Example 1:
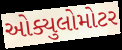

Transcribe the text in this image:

ઓક્યુલોમોટર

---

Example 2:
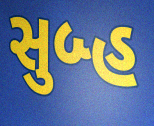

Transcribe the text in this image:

સુબ્હ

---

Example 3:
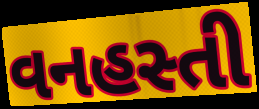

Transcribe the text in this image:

વનહસ્તી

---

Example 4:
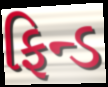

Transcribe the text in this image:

ફિન્ડ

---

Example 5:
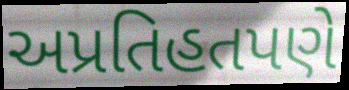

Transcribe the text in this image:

અપ્રતિહતપણે